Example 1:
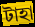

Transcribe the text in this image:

টাহা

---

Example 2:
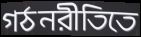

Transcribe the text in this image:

গঠনরীতিতে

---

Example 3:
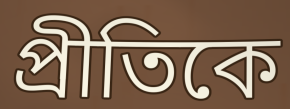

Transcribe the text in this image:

প্রীতিকে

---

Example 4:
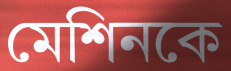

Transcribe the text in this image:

মেশিনকে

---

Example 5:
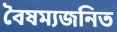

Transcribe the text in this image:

বৈষম্যজনিত